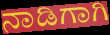
ನಾಡಿಗಾಗಿ